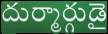
దుర్మార్గుడై